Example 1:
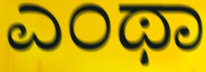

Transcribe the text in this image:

ಎಂಥಾ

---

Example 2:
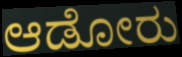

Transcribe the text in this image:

ಆಡೋರು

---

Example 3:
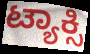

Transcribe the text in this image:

ಟ್ಯಾಕ್ಸಿ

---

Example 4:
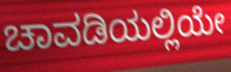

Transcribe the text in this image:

ಚಾವಡಿಯಲ್ಲಿಯೇ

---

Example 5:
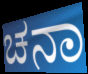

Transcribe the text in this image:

ಚನಾ